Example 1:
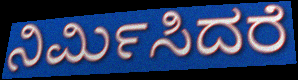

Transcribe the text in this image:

ನಿರ್ಮಿಸಿದರೆ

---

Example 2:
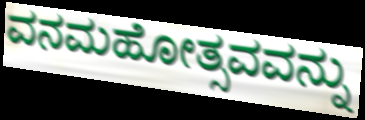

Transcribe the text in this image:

ವನಮಹೋತ್ಸವವನ್ನು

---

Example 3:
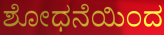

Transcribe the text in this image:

ಶೋಧನೆಯಿಂದ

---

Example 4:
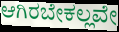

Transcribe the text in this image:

ಆಗಿರಬೇಕಲ್ಲವೇ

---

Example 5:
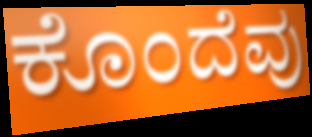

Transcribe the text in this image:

ಕೊಂದೆವು